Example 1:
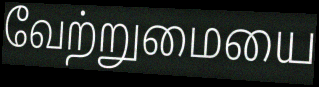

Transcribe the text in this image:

வேற்றுமையை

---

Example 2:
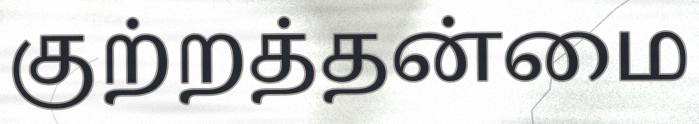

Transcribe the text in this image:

குற்றத்தன்மை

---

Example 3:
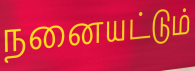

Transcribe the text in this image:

நனையட்டும்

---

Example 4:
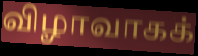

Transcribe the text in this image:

விழாவாகக்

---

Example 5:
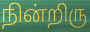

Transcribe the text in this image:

நின்றிரு